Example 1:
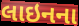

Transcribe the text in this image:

લાઇનના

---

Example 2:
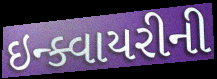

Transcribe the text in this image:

ઇન્ક્વાયરીની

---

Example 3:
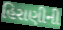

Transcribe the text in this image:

હિરાણીની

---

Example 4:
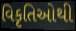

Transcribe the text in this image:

વિકૃતિઓથી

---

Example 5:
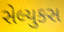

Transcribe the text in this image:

સેલ્યુકસ